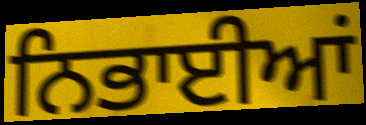
ਨਿਭਾਈਆਂ